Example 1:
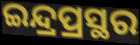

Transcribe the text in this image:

ଇନ୍ଦ୍ରପ୍ରସ୍ଥର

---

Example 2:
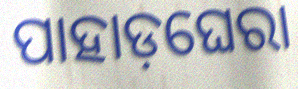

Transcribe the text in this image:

ପାହାଡ଼ଘେରା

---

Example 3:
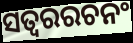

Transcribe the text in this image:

ସତ୍ୱରରଚନଂ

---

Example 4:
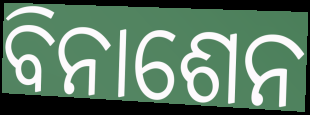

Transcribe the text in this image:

ବିନାଶେନ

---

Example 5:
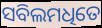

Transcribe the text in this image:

ସବିଲମଧିତେ